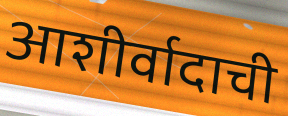
आशीर्वादाची